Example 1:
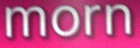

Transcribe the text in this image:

morn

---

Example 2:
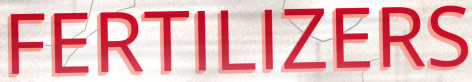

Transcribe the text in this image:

FERTILIZERS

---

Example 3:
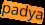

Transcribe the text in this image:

padya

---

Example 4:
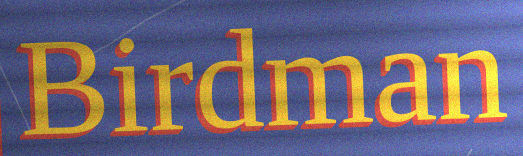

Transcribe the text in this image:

Birdman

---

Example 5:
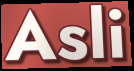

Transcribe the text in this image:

Asli